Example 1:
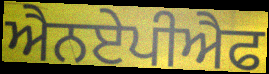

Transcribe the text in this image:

ਐਨਏਪੀਐਫ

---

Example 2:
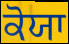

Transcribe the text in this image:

ਕੋਯਾ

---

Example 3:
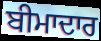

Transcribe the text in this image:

ਬੀਮਾਦਾਰ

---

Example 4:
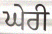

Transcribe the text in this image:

ਘੇਰੀ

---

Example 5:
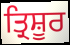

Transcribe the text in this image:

ਤ੍ਰਿਸ਼ੂਰ